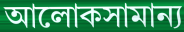
আলোকসামান্য